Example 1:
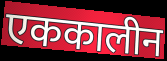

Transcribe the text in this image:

एककालीन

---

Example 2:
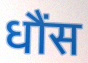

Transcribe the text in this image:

धौंस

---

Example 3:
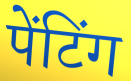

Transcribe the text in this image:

पेंटिंग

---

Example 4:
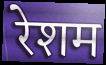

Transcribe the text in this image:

रेशम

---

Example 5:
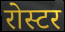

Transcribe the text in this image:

रोस्टर